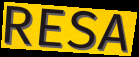
RESA